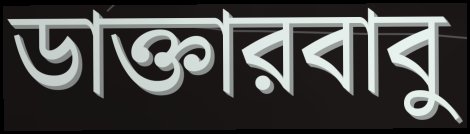
ডাক্তারবাবু